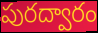
పురద్వారం